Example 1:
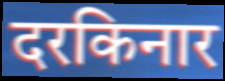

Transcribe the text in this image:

दरकिनार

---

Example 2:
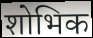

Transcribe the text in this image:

शोभिक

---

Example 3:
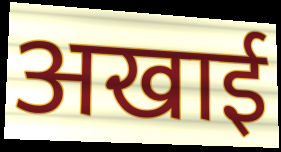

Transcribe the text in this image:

अखाई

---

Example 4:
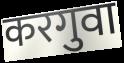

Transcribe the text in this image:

करगुवा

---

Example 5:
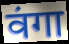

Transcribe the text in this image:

वंगा